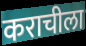
कराचीला